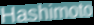
Hashimoto